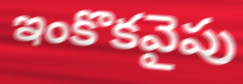
ఇంకొకవైపు